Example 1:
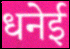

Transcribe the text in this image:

धनेई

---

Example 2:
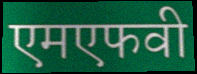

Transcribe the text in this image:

एमएफवी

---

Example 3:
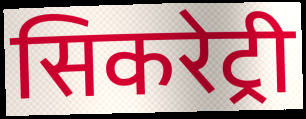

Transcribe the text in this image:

सिकरेट्री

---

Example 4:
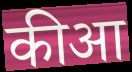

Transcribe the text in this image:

कीआ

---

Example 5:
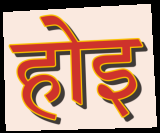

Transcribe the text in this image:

होइ